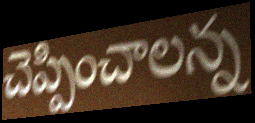
చెప్పించాలన్న